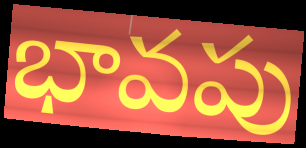
భావపు